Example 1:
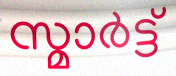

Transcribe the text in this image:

സ്മാർട്ട്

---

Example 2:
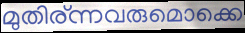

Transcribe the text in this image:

മുതിര്ന്നവരുമൊക്കെ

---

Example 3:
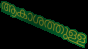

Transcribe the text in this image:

ആകാശത്തുള്ള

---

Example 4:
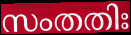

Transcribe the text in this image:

സംതതിഃ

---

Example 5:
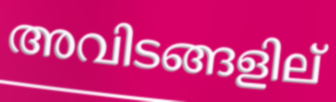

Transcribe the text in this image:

അവിടങ്ങളില്